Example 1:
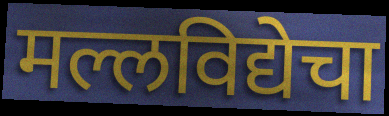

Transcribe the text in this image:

मल्लविद्येचा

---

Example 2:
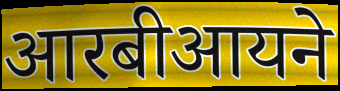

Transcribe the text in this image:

आरबीआयने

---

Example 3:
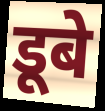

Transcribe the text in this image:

डूबे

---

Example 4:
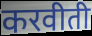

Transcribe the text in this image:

करवीती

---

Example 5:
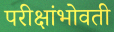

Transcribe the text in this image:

परीक्षांभोवती